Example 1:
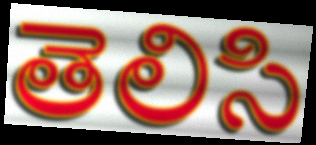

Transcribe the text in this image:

తెలిసి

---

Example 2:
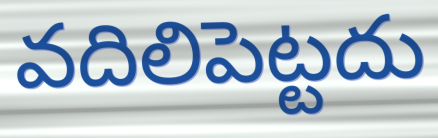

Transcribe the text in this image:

వదిలిపెట్టదు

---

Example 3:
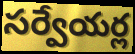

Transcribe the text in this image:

సర్వేయర్ల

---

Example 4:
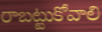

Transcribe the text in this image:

రాబట్టుకోవాలి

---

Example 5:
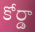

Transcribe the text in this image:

కోర్డా